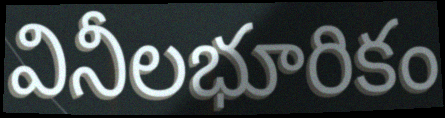
వినీలభూరికం